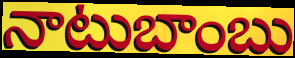
నాటుబాంబు